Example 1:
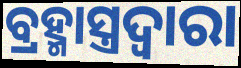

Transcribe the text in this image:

ବ୍ରହ୍ମାସ୍ତ୍ରଦ୍ୱାରା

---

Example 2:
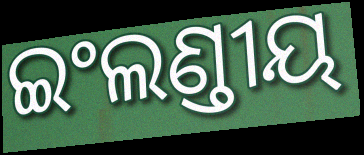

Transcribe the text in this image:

ଇଂଲଣ୍ଡୀୟ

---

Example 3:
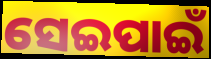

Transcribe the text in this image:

ସେଇପାଇଁ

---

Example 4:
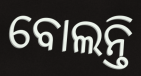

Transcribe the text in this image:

ବୋଲନ୍ତି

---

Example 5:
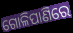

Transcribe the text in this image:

ଗୋଳିପାଣିରେ